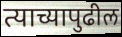
त्याच्यापुढील